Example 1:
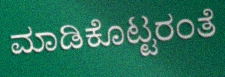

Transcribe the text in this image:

ಮಾಡಿಕೊಟ್ಟರಂತೆ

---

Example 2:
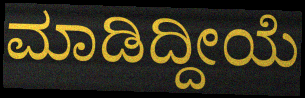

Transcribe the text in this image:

ಮಾಡಿದ್ದೀಯೆ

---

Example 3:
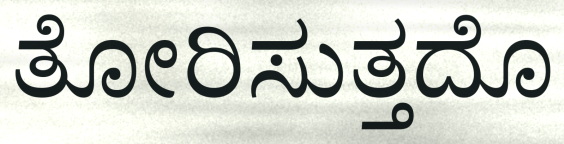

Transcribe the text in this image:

ತೋರಿಸುತ್ತದೊ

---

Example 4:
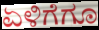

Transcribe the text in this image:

ಏಳಿಗೆಗೂ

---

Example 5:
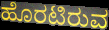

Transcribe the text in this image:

ಹೊರಟಿರುವ